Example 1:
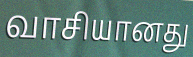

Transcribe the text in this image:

வாசியானது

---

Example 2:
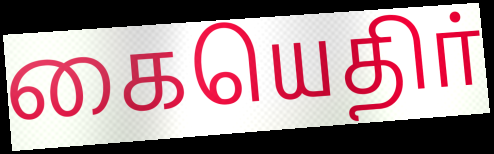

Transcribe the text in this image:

கையெதிர்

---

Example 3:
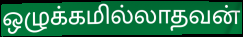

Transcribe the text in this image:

ஒழுக்கமில்லாதவன்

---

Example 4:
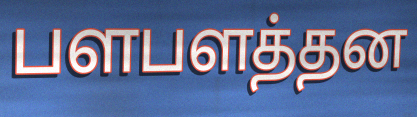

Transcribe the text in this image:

பளபளத்தன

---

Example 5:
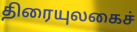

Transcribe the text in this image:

திரையுலகைச்